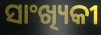
ସାଂଖ୍ୟିକୀ